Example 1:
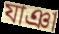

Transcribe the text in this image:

যাঞা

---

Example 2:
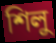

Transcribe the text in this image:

শিলু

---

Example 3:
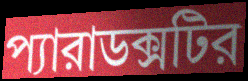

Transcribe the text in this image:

প্যারাডক্সটির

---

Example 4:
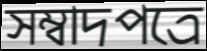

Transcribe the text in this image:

সম্বাদপত্রে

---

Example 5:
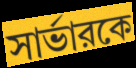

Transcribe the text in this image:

সার্ভারকে